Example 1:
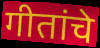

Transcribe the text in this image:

गीतांचे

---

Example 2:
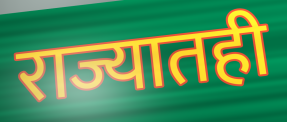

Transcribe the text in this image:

राज्यातही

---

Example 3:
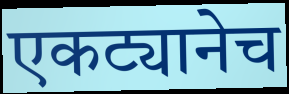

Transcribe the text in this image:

एकट्यानेच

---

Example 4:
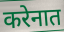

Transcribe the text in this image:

करेनात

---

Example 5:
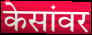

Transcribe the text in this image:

केसांवर